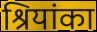
श्रियांका